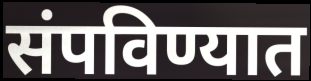
संपविण्यात